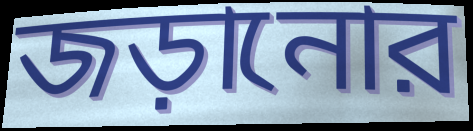
জড়ানোর